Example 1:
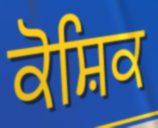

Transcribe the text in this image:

ਕੋਸ਼ਿਕ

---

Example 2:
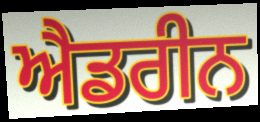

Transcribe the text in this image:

ਐਡਰੀਨ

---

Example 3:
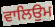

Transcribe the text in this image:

ਵਾਲਿਉਮ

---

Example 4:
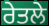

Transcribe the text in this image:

ਰੇਤਲੇ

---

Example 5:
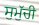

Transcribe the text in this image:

ਸੁਮੁੱਚੀ